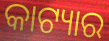
କାଟ୍ୟାର